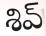
శివ్